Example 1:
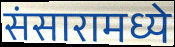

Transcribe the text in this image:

संसारामध्ये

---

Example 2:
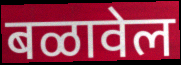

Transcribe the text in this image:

बळावेल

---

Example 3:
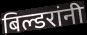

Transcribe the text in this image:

बिल्डरांनी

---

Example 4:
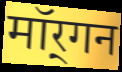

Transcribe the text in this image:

मॉर्गन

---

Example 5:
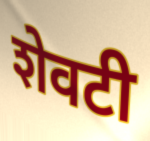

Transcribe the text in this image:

शेवटी